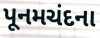
પૂનમચંદના